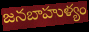
జనబాహుళ్యం